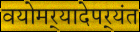
वयोमर्यादेपर्यंत